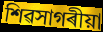
শিৱসাগৰীয়া